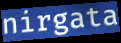
nirgata